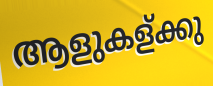
ആളുകള്ക്കു